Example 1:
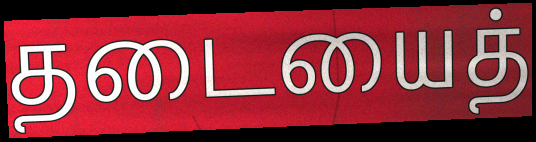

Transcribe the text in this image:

தடையைத்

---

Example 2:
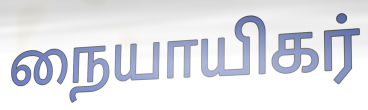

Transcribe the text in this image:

நையாயிகர்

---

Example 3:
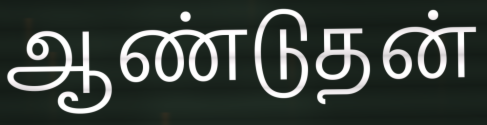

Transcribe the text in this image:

ஆண்டுதன்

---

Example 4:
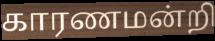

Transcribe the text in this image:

காரணமன்றி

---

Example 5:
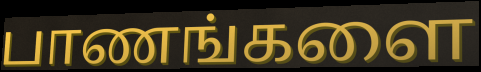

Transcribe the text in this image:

பாணங்களை